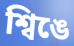
শ্বিঙে